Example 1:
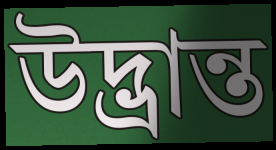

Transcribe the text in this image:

উদ্ভ্রান্ত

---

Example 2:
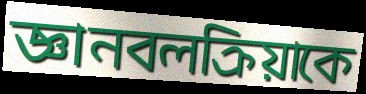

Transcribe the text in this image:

জ্ঞানবলক্রিয়াকে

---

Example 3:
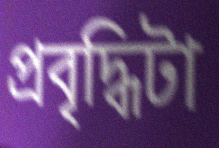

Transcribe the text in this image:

প্রবৃদ্ধিটা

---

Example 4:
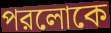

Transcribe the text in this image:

পরলোকে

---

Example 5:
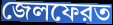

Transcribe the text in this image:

জেলফেরত